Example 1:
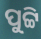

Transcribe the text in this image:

ପୁଟ୍ଟି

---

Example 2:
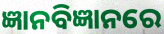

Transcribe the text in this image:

ଜ୍ଞାନବିଜ୍ଞାନରେ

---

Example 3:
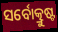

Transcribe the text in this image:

ସର୍ବୋତ୍କ୍ରୁଷ୍ଟ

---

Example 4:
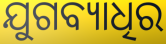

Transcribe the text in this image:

ଯୁଗବ୍ୟାଧିର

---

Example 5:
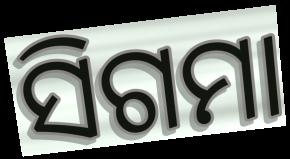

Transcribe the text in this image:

ସିଗମା